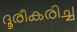
ദൂരീകരിച്ച